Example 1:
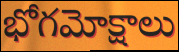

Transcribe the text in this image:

భోగమోక్షాలు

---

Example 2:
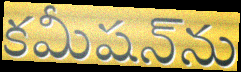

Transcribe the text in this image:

కమీషన్‌ను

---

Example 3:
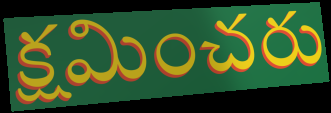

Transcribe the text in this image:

క్షమించరు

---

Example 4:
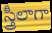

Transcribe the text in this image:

స్త్రీలాగా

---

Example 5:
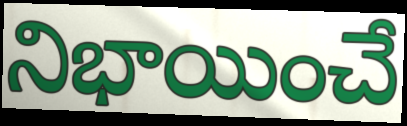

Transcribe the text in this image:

నిభాయించే